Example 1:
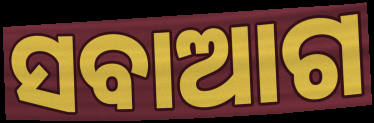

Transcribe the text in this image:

ସବାଆଗ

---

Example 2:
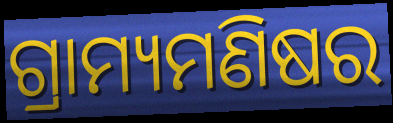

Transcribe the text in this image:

ଗ୍ରାମ୍ୟମଣିଷର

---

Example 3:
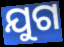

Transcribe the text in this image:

ଯୁଗ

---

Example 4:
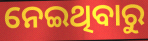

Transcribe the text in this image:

ନେଇଥିବାରୁ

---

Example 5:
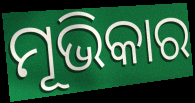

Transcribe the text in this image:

ମୂଭିକାର